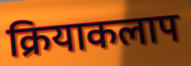
क्रियाकलाप